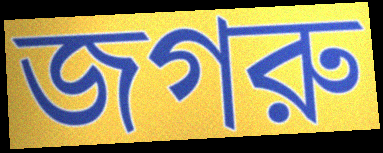
জগরু